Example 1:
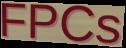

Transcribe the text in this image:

FPCs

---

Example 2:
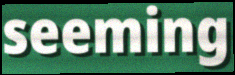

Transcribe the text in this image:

seeming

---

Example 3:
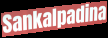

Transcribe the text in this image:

Sankalpadina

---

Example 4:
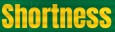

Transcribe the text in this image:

Shortness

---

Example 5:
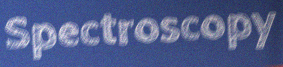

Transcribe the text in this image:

Spectroscopy